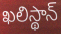
ఖలిస్థాన్